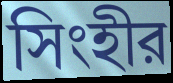
সিংহীর